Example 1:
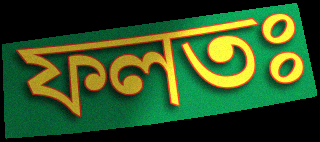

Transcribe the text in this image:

ফলতঃ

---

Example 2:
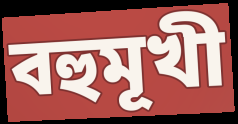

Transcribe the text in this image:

বহুমূখী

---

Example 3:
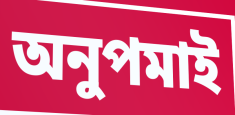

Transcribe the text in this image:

অনুপমাই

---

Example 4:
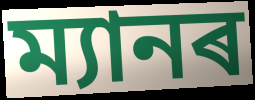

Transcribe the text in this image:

ম্যানৰ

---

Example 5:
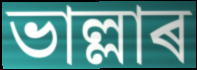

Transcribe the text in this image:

ভাল্লাৰ